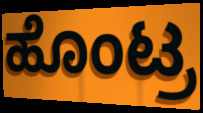
ಹೊಂಟ್ರ